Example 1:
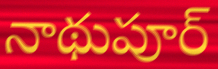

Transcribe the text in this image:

నాథుపూర్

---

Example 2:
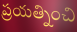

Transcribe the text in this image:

ప్రయత్నించి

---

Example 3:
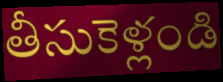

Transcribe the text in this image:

తీసుకెళ్లండి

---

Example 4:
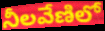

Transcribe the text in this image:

నీలవేణిలో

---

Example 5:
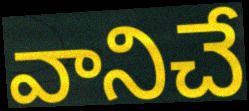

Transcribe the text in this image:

వానిచే